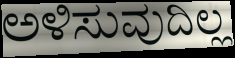
ಅಳಿಸುವುದಿಲ್ಲ